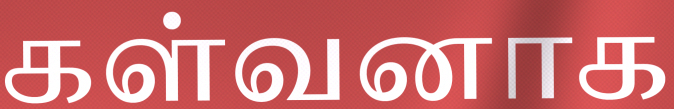
கள்வனாக